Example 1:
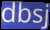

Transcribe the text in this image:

dbsj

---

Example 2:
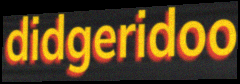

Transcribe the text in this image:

didgeridoo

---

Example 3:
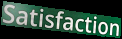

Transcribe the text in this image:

Satisfaction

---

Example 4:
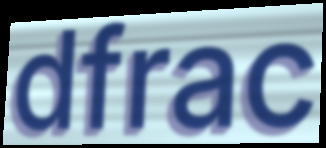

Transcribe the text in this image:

dfrac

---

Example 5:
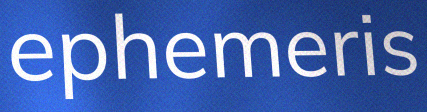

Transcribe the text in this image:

ephemeris